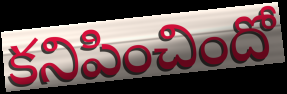
కనిపించిందో